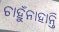
ଚାହୁଁନାହାନ୍ତି